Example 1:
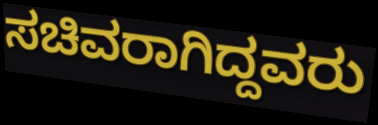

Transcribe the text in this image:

ಸಚಿವರಾಗಿದ್ದವರು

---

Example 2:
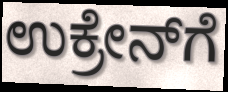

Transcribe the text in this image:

ಉಕ್ರೇನ್‌ಗೆ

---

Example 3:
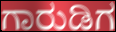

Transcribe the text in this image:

ಗಾರುಡಿಗ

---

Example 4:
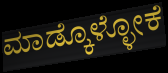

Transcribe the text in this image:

ಮಾಡ್ಕೊಳ್ಳೋಕೆ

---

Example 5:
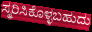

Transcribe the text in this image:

ಸ್ಮರಿಸಿಕೊಳ್ಳಬಹುದು